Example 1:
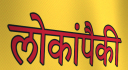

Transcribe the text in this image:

लोकांपैकी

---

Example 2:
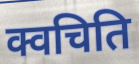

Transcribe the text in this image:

क्वचिति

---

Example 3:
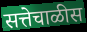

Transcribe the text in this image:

सत्तेचाळीस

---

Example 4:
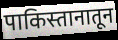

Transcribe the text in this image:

पाकिस्तानातून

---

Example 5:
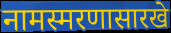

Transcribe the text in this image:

नामस्मरणासारखे